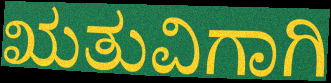
ಋತುವಿಗಾಗಿ